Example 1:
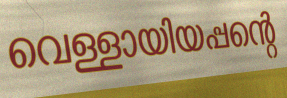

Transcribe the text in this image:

വെള്ളായിയപ്പന്റെ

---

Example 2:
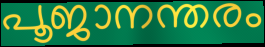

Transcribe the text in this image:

പൂജാനന്തരം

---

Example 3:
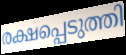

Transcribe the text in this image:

രക്ഷപ്പെടുത്തി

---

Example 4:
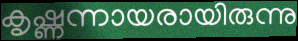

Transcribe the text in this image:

കൃഷ്ണന്നായരായിരുന്നു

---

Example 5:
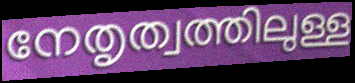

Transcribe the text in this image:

നേതൃത്വത്തിലുള്ള